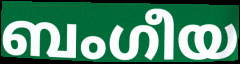
ബംഗീയ